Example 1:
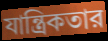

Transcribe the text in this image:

যান্ত্রিকতার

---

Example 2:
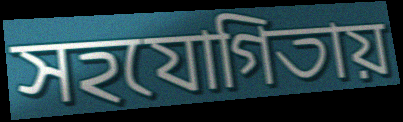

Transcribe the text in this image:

সহযোগিতায়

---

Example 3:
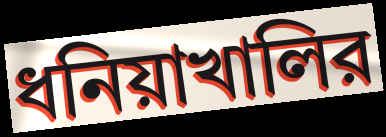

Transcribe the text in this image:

ধনিয়াখালির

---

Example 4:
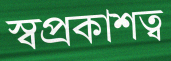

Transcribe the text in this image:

স্বপ্রকাশত্ব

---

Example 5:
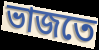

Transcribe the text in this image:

ভাজতে